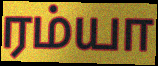
ரம்யா